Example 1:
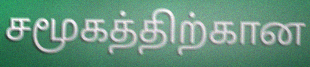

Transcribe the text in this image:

சமூகத்திற்கான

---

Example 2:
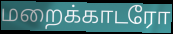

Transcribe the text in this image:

மறைக்காடரோ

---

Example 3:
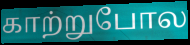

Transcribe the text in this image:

காற்றுபோல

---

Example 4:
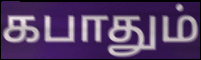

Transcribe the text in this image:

கபாதும்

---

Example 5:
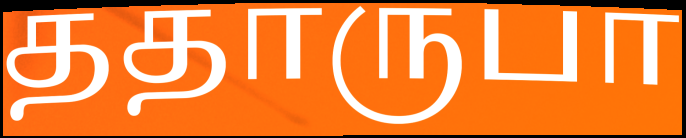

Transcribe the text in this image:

ததாருபா